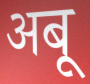
अबू